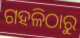
ଗହଳିଠାରୁ